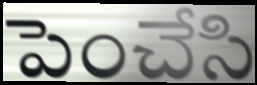
పెంచేసి